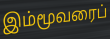
இம்மூவரைப்